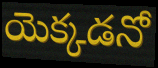
యెక్కడనో